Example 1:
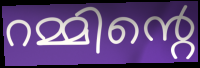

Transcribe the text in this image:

റമ്മിന്റെ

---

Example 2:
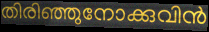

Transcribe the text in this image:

തിരിഞ്ഞുനോക്കുവിൻ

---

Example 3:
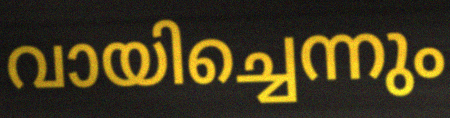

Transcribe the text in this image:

വായിച്ചെന്നും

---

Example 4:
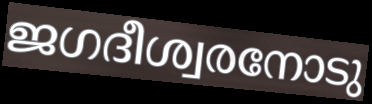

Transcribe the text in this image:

ജഗദീശ്വരനോടു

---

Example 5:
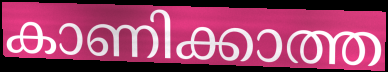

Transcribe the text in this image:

കാണിക്കാത്ത